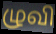
ழுவி